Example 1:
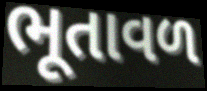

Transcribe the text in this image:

ભૂતાવળ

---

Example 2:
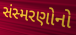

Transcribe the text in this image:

સંસ્મરણોનો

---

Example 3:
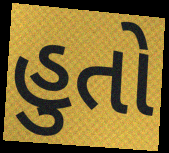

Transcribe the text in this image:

હુતો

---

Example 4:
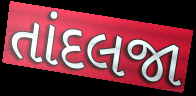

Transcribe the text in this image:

તાંદલજા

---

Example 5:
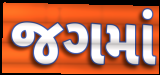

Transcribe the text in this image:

જગમાં